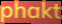
phakt